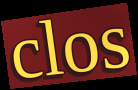
clos